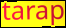
tarap